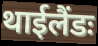
थाईलैंडः